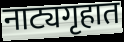
नाट्यगृहात